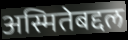
अस्मितेबद्दल